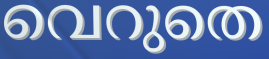
വെറുതെ